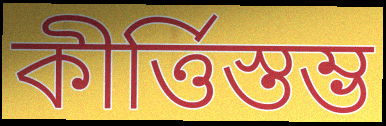
কীর্ত্তিস্তম্ভ